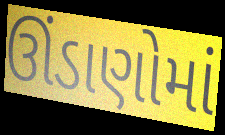
ઊંડાણોમાં